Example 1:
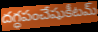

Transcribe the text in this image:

దగ్ధపంచేషుకీటమ్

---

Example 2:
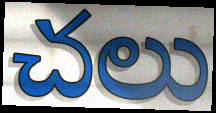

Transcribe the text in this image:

చలు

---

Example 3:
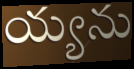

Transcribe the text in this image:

య్యను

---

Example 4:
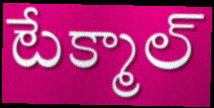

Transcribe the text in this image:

టేక్మాల్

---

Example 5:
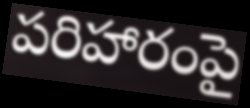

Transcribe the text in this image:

పరిహారంపై